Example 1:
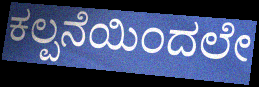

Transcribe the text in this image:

ಕಲ್ಪನೆಯಿಂದಲೇ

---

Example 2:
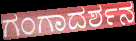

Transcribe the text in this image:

ಗಂಗಾದರ್ಶನ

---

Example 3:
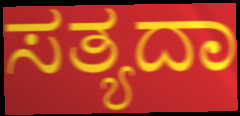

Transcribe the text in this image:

ಸತ್ಯದಾ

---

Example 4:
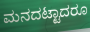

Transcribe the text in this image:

ಮನದಟ್ಟಾದರೂ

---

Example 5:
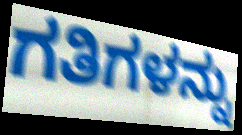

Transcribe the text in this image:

ಗತಿಗಳನ್ನು